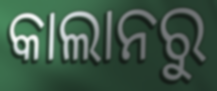
କାଲାନରୁ